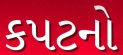
કપટનો